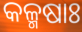
କଳ୍ମଷାଃ